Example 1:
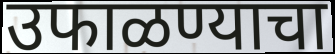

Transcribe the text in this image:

उफाळण्याचा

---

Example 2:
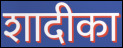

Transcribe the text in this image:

शादीका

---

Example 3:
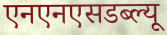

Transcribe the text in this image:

एनएनएसडब्ल्यू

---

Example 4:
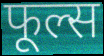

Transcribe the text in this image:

फूल्स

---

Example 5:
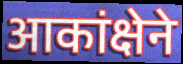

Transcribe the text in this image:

आकांक्षेने